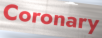
Coronary